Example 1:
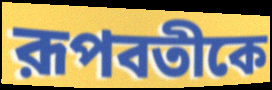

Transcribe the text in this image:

রূপবতীকে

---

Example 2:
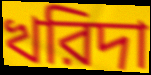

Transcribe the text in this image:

খরিদা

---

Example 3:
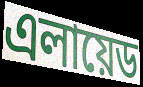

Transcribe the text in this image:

এলায়েড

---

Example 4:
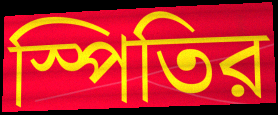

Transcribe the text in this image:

স্পিতির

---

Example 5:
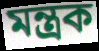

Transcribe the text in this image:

মন্ত্রক